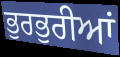
ਭੁਰਭੁਰੀਆਂ